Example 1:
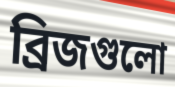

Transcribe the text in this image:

ব্রিজগুলো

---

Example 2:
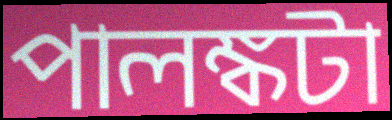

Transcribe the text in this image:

পালঙ্কটা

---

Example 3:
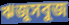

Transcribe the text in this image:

ঋজুসবুজ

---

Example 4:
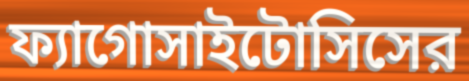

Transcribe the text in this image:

ফ্যাগোসাইটোসিসের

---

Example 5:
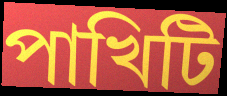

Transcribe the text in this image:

পাখিটি